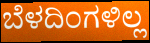
ಬೆಳದಿಂಗಳಿಲ್ಲ